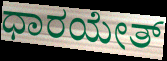
ಧಾರಯೇತ್